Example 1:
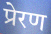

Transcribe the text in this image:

प्रेरण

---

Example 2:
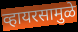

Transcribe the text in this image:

व्हायरसामुळे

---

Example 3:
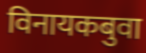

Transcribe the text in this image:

विनायकबुवा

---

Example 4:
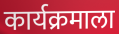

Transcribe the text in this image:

कार्यक्रमाला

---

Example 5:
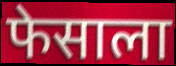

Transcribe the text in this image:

फेसाला